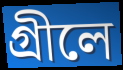
গ্রীলে